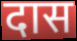
दास